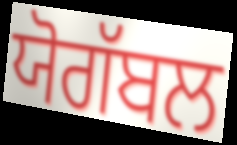
ਯੋਗੱਬਲ